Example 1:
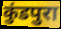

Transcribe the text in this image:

कुंडपुरा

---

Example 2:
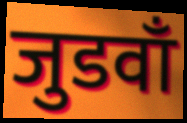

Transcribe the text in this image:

जुडवाँ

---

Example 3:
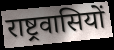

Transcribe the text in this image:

राष्ट्रवासियों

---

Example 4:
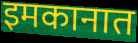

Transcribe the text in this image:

इमकानात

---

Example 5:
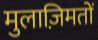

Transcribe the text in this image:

मुलाज़िमतों